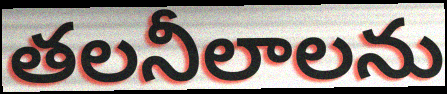
తలనీలాలను